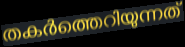
തകർത്തെറിയുന്നത്